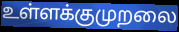
உள்ளக்குமுறலை